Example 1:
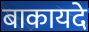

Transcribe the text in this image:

बाकायदे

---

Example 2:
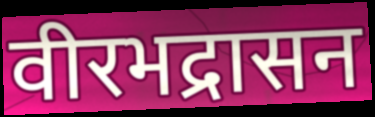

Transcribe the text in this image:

वीरभद्रासन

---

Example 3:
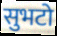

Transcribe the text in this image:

सुभटो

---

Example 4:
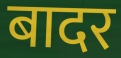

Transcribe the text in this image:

बादर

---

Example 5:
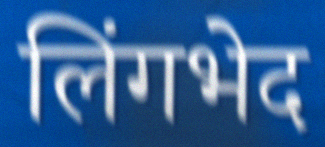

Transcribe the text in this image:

लिंगभेद